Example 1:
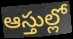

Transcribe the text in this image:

ఆస్తుల్లో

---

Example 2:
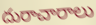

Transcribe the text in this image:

దురాచారాలు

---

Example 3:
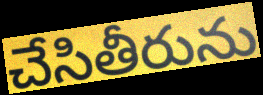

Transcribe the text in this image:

చేసితీరును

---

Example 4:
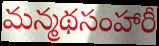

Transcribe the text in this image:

మన్మథసంహారీ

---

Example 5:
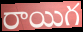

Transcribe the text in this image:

రాయిగ